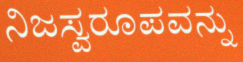
ನಿಜಸ್ವರೂಪವನ್ನು